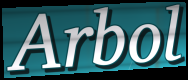
Arbol